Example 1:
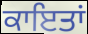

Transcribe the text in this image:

ਕਾਇਤਾਂ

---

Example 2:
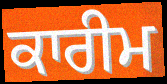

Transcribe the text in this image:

ਕਾਰੀਮ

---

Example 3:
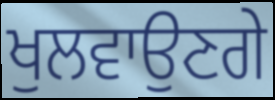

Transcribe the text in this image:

ਖੁਲਵਾਉਣਗੇ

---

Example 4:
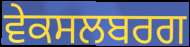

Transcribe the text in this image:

ਵੇਕਸਲਬਰਗ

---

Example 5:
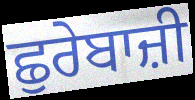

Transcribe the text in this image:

ਛੁਰੇਬਾਜ਼ੀ